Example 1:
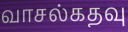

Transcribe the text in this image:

வாசல்கதவு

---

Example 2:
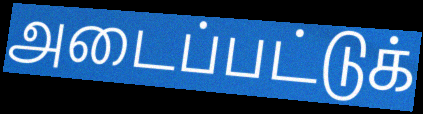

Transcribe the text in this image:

அடைப்பட்டுக்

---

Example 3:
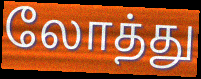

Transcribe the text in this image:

லோத்து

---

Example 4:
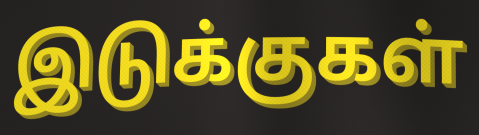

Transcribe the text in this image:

இடுக்குகள்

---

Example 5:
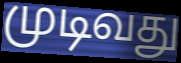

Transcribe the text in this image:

முடிவது